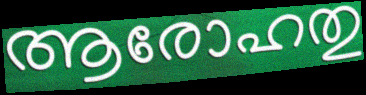
ആരോഹതു